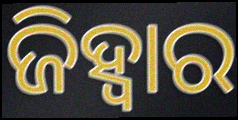
ଜିହ୍ଵାର